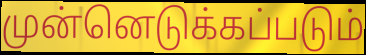
முன்னெடுக்கப்படும்